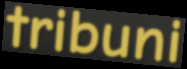
tribuni